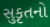
સુકૃતનો